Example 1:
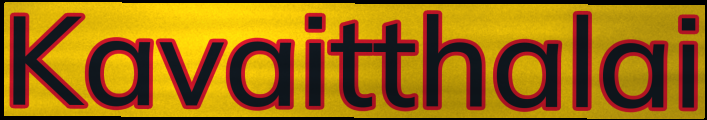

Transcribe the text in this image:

Kavaitthalai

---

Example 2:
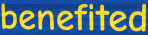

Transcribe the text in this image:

benefited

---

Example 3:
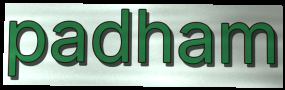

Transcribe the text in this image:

padham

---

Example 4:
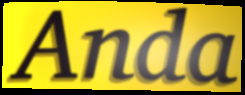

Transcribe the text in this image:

Anda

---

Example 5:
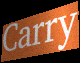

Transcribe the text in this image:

Carry